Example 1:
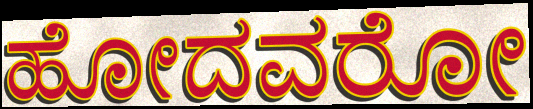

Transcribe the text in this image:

ಹೋದವರೋ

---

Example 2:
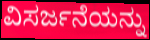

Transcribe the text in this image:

ವಿಸರ್ಜನೆಯನ್ನು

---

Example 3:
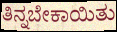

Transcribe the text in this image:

ತಿನ್ನಬೇಕಾಯಿತು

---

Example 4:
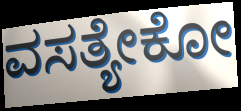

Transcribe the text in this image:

ವಸತ್ಯೇಕೋ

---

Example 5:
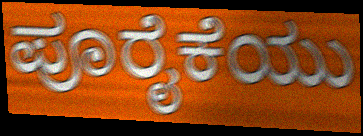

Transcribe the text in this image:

ಪೂರೈಕೆಯು